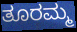
ತೂರಮ್ಮ